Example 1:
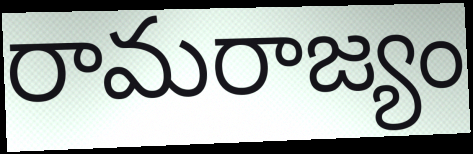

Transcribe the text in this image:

రామరాజ్యం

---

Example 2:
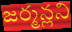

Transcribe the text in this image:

జర్మన్లని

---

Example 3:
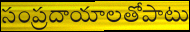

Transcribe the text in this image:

సంప్రదాయాలతోపాటు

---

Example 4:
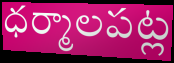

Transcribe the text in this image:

ధర్మాలపట్ల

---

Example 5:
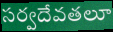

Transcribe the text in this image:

సర్వదేవతలూ